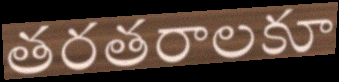
తరతరాలకూ